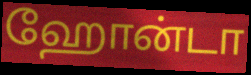
ஹோன்டா